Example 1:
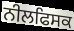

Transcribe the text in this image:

ਨੀਲਫਿਸਕ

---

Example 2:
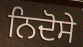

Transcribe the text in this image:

ਨਿਦੋਸੇ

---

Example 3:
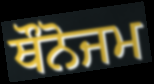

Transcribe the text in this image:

ਥੌਨੋਜਮ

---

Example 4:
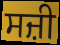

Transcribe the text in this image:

ਸਜ਼ੀ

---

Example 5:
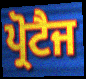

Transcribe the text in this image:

ਪ੍ਰੋਟੈਜ